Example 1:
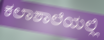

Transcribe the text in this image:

ಕಲಾಶಾಲೆಯಲ್ಲಿ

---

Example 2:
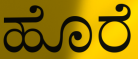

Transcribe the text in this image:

ಹೊರೆ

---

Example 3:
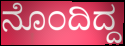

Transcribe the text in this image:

ನೊಂದಿದ್ದ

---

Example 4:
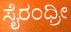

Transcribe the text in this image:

ಸೈರಂಧ್ರೀ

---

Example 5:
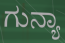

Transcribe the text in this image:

ಗುನ್ಯಾ